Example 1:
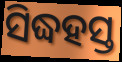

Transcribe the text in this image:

ସିଦ୍ଧହସ୍ତ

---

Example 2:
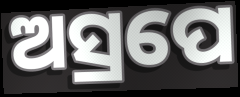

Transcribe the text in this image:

ଅସ୍ରପେ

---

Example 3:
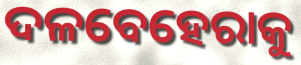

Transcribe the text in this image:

ଦଳବେହେରାକୁ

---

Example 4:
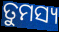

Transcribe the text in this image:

ତୁମସ୍ୟ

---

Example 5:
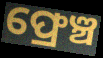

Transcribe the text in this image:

ଫ୍ରେଞ୍ଚ